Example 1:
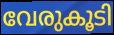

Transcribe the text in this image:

വേരുകൂടി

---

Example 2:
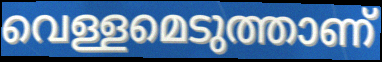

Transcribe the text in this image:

വെള്ളമെടുത്താണ്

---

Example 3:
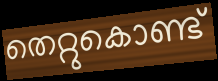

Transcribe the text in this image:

തെറ്റുകൊണ്ട്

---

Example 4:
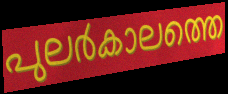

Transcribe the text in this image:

പുലർകാലത്തെ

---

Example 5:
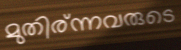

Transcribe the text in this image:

മുതിര്ന്നവരുടെ